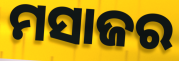
ମସାଜର